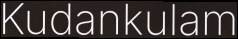
Kudankulam